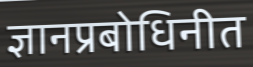
ज्ञानप्रबोधिनीत